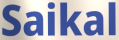
Saikal